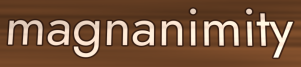
magnanimity